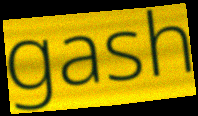
gash